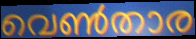
വെൺതാര